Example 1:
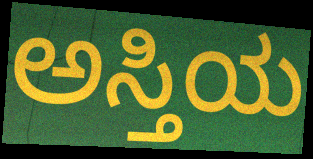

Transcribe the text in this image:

ಅಸ್ತಿಯ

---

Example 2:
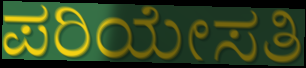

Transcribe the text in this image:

ಪರಿಯೇಸತಿ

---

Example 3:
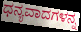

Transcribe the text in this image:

ಧನ್ಯವಾದಗಳನ್ನ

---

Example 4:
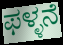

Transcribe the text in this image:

ಫಳ್ಳನೆ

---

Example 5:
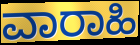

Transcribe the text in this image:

ವಾರಾಹಿ